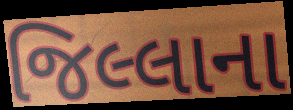
જિલ્લાના